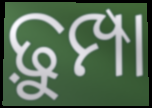
ଢ଼ୁମ୍ପା